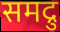
समद्रु